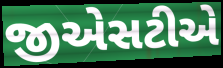
જીએસટીએ